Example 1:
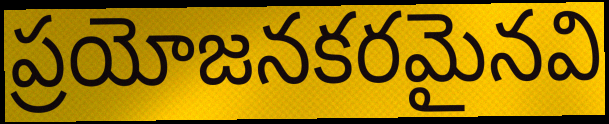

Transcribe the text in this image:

ప్రయోజనకరమైనవి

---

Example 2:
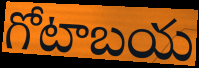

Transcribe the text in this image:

గోటాబయ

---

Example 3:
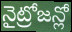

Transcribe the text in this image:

నైట్రోజన్లో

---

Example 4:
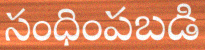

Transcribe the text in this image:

సంధింపబడి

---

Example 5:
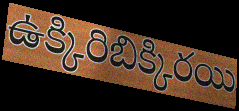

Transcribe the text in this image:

ఉక్కిరిబిక్కిరయి